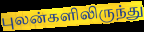
புலன்களிலிருந்து